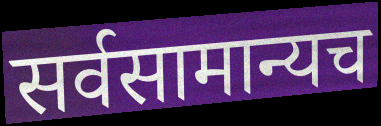
सर्वसामान्यच